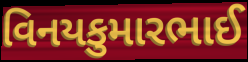
વિનયકુમારભાઈ